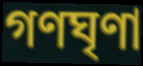
গণঘৃণা